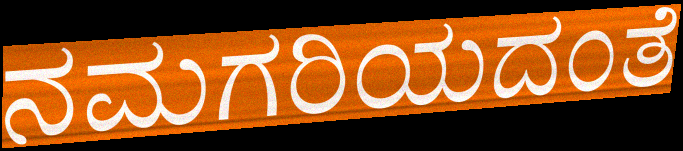
ನಮಗರಿಯದಂತೆ